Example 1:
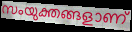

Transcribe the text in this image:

സംയുക്തങ്ങളാണ്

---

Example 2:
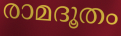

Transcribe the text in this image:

രാമദൂതം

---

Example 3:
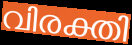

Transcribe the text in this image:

വിരക്തി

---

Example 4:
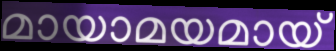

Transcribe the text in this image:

മായാമയമായ്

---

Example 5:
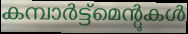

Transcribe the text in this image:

കമ്പാർട്ട്മെന്റുകൾ